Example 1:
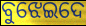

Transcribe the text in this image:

ବୁଝେଇଦେ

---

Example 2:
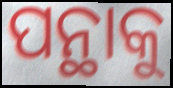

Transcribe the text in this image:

ପନ୍ଥାକୁ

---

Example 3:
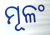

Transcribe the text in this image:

ମୂଳଂ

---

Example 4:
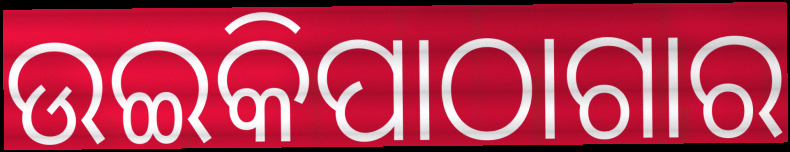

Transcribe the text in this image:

ଉଇକିପାଠାଗାର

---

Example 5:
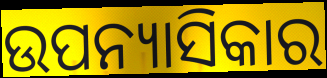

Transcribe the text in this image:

ଉପନ୍ୟାସିକାର